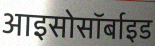
आइसोसॉर्बाइड